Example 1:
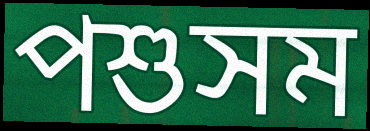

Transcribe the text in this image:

পশুসম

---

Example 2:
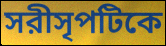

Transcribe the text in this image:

সরীসৃপটিকে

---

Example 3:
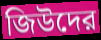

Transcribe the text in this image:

জিউদের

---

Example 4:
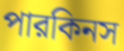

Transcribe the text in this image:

পারকিনস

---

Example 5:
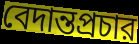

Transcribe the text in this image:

বেদান্তপ্রচার